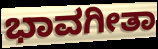
ಭಾವಗೀತಾ